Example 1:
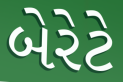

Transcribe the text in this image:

બેરેટે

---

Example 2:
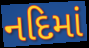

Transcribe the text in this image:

નદિમાં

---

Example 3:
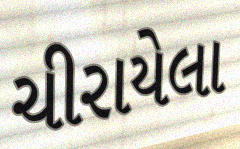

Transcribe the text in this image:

ચીરાયેલા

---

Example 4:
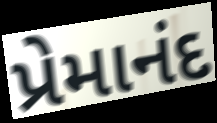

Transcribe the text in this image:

પ્રેમાનંદ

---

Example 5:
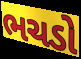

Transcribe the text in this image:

ભચડો